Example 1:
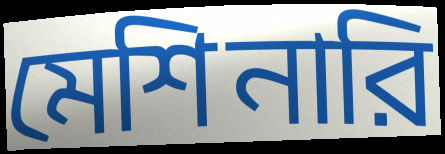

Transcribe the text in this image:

মেশিনারি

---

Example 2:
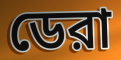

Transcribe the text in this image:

ডেরা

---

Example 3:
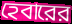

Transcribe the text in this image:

হেবারের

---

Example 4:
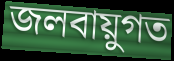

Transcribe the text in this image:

জলবায়ুগত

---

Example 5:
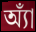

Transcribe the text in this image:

অ্যাঁ